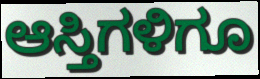
ಆಸ್ತಿಗಳಿಗೂ